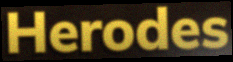
Herodes